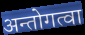
अन्तोगत्वा